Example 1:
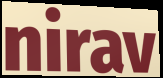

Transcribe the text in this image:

nirav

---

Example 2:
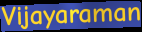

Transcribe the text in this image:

Vijayaraman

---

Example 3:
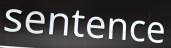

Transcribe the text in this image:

sentence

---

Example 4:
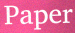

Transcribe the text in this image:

Paper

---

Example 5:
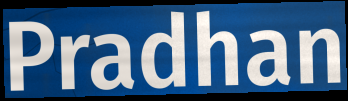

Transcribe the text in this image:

Pradhan